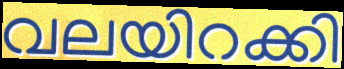
വലയിറക്കി